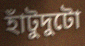
হাঁটুদুটো